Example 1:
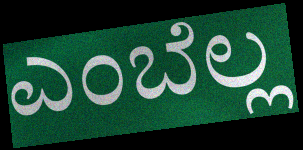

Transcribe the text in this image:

ಎಂಬೆಲ್ಲ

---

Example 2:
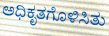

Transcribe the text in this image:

ಅಧಿಕೃತಗೊಳಿಸಿತು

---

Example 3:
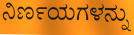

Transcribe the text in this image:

ನಿರ್ಣಯಗಳನ್ನು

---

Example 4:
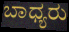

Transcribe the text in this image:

ಬಾಧ್ಯರು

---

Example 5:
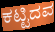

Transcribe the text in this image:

ಕಟ್ಟಿದವ